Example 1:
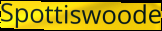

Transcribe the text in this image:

Spottiswoode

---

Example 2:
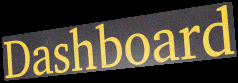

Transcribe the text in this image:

Dashboard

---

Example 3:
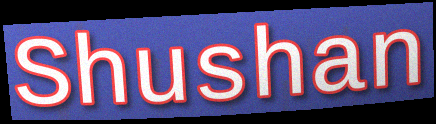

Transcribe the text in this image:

Shushan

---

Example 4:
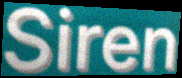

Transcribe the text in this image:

Siren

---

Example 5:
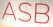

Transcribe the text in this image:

ASB